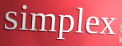
simplex